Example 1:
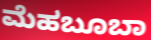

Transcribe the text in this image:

ಮೆಹಬೂಬಾ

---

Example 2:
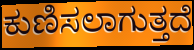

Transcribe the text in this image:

ಕುಣಿಸಲಾಗುತ್ತದೆ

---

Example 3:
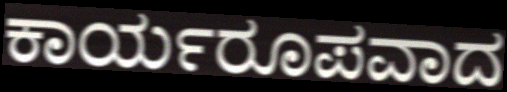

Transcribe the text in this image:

ಕಾರ್ಯರೂಪವಾದ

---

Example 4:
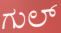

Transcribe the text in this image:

ಗುಲ್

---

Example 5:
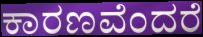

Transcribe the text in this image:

ಕಾರಣವೆಂದರೆ